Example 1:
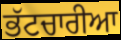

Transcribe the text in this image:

ਭੱਟਚਾਰੀਆ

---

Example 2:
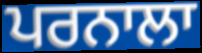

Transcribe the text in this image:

ਪਰਨਾਲਾ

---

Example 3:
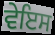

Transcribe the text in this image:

ਵੇਇਸ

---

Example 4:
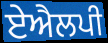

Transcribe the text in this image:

ਏਐਲਪੀ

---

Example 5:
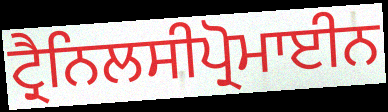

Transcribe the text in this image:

ਟ੍ਰੈਨਿਲਸੀਪ੍ਰੋਮਾਈਨ